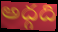
అద్గది